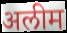
अलीम